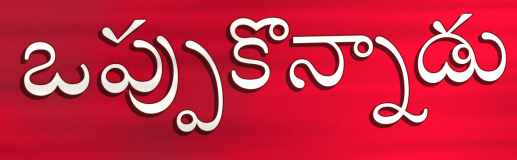
ఒప్పుకొన్నాడు